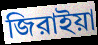
জিরাইয়া